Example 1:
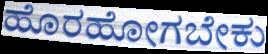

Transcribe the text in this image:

ಹೊರಹೋಗಬೇಕು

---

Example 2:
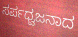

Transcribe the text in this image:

ಸರ್ಪಧ್ವಜನಾದ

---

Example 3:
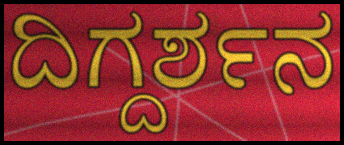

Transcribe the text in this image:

ದಿಗ್ದರ್ಶನ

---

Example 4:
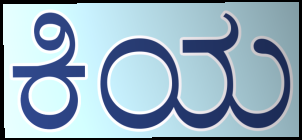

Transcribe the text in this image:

ಕಿಯ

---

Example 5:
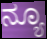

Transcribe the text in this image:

ನ್ಯೂ